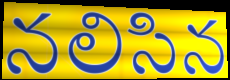
నలిసిన